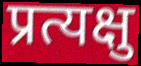
प्रत्यक्षु